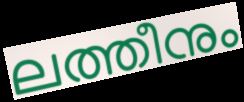
ലത്തീനും